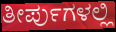
ತೀರ್ಪುಗಳಲ್ಲಿ